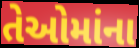
તેઓમાંના